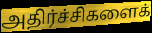
அதிர்ச்சிகளைக்